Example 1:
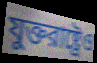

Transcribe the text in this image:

যুক্তরাষ্ট্রেও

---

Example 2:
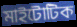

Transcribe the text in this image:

মাইটোটিক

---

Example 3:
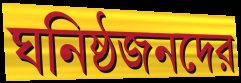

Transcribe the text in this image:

ঘনিষ্ঠজনদের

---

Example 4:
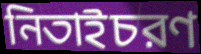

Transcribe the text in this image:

নিতাইচরণ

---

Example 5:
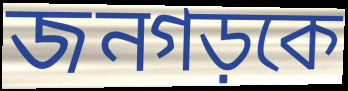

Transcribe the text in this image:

জনগড়কে